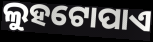
ଲୁହଟୋପାଏ